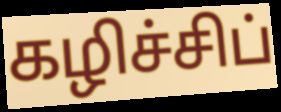
கழிச்சிப்